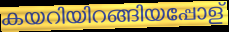
കയറിയിറങ്ങിയപ്പോള്